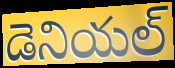
డెనియల్